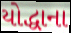
યોદ્ધાના